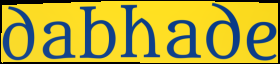
dabhade